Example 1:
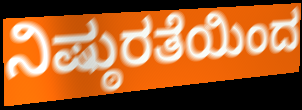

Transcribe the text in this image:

ನಿಷ್ಠುರತೆಯಿಂದ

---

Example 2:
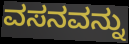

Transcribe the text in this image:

ವಸನವನ್ನು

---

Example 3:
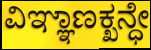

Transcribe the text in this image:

ವಿಞ್ಞಾಣಕ್ಖನ್ಧೇ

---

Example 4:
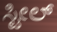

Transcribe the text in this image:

ಸ್ಟೀಲ್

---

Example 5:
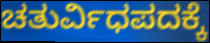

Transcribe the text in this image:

ಚತುರ್ವಿಧಪದಕ್ಕೆ